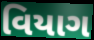
વિયાગ